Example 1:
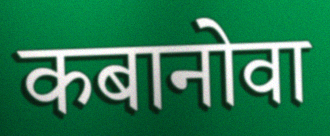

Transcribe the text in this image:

कबानोवा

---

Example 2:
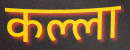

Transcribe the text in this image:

कल्ला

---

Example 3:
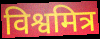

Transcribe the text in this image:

विश्वमित्र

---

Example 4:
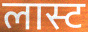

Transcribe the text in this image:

लास्ट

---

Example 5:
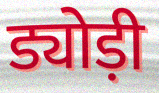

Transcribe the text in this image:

ड्योड़ी